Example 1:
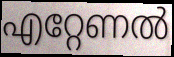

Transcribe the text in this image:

എറ്റേണൽ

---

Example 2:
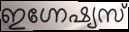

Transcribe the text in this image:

ഇഗ്നേഷ്യസ്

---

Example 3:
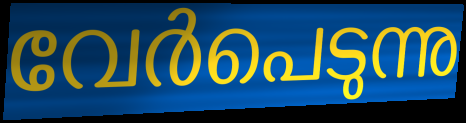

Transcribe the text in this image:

വേർപെടുന്നു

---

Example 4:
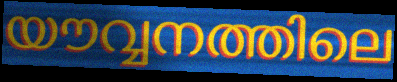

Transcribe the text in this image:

യൗവ്വനത്തിലെ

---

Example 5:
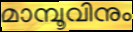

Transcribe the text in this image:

മാമ്പൂവിനും